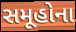
સમૂહોના